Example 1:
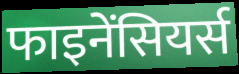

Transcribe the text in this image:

फाइनेंसियर्स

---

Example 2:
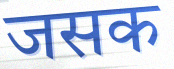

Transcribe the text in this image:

जसक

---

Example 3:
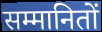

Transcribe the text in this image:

सम्मानितों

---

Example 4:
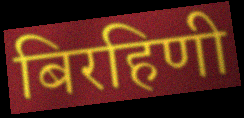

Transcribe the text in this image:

बिरहिणी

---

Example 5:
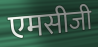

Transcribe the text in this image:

एमसीजी